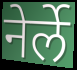
नेर्ले